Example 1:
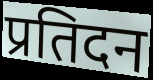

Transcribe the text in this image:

प्रतिदन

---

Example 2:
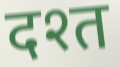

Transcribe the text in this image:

दश्त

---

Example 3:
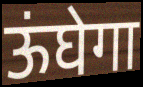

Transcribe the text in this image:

ऊंघेगा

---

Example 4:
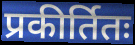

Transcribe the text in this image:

प्रकीर्तितः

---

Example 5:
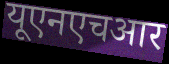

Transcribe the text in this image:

यूएनएचआर